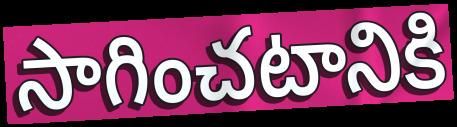
సాగించటానికి